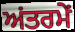
ਅਂਤਰਮੇਂ